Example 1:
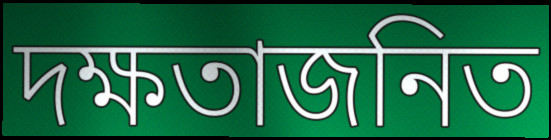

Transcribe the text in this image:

দক্ষতাজনিত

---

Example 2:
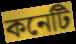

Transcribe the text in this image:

কনেটি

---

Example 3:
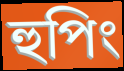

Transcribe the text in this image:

হুপিং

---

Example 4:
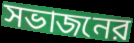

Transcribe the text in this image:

সভাজনের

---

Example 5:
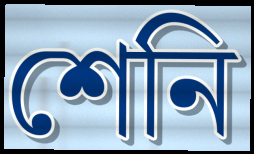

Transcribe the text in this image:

শেনি